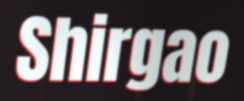
Shirgao